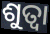
ଶୁତ୍ବା